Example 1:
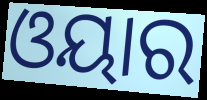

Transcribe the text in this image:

ଓୟାର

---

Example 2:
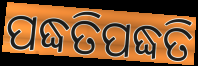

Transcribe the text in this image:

ପଦ୍ଧତିପଦ୍ଧତି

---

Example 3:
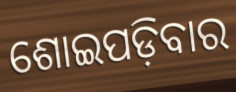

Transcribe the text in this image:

ଶୋଇପଡ଼ିବାର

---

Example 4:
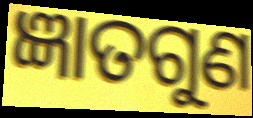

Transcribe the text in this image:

ଜ୍ଞାତଗୁଣ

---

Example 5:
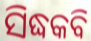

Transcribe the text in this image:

ସିଦ୍ଧକବି